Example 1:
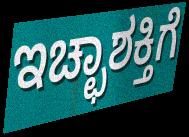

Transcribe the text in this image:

ಇಚ್ಛಾಶಕ್ತಿಗೆ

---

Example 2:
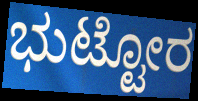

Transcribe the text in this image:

ಭುಟ್ಟೋರ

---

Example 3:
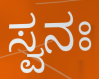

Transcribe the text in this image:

ಸ್ವನಃ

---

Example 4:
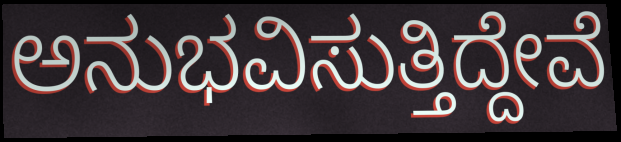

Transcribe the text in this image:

ಅನುಭವಿಸುತ್ತಿದ್ದೇವೆ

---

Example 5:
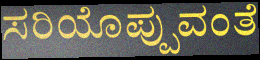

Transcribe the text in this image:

ಸರಿಯೊಪ್ಪುವಂತೆ